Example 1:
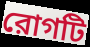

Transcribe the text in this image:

রোগটি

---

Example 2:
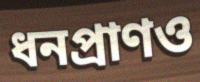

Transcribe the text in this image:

ধনপ্রাণও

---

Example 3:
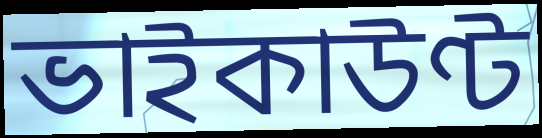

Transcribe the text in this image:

ভাইকাউণ্ট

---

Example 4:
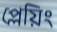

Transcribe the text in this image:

প্লেয়িং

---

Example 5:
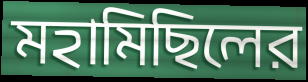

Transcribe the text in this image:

মহামিছিলের